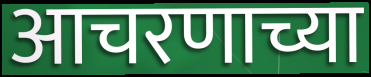
आचरणाच्या